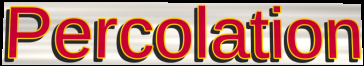
Percolation